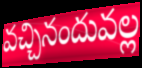
వచ్చినందువల్ల